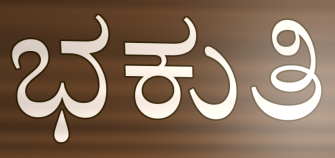
ಭಕುತಿ